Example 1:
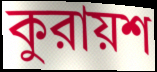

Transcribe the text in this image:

কুরায়শ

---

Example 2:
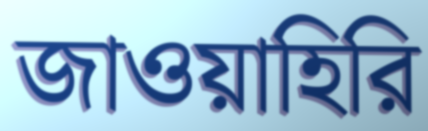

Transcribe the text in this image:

জাওয়াহিরি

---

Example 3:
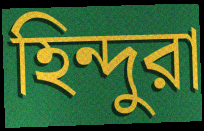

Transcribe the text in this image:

হিন্দুরা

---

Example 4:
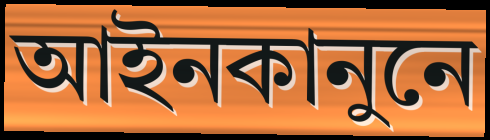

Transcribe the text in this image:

আইনকানুনে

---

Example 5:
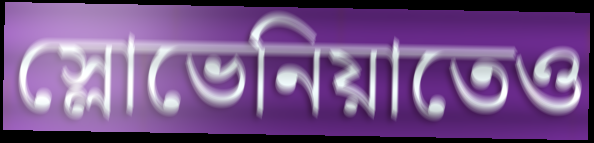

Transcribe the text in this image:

স্লোভেনিয়াতেও